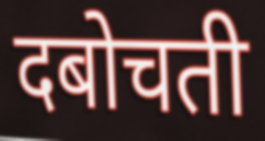
दबोचती